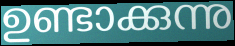
ഉണ്ടാക്കുന്നു